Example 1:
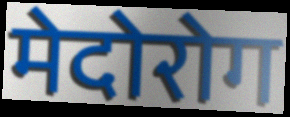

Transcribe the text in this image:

मेदोरोग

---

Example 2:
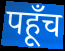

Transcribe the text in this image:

पहूँच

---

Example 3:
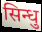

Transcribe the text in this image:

सिन्धु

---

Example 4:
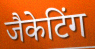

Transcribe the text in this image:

जैकेटिंग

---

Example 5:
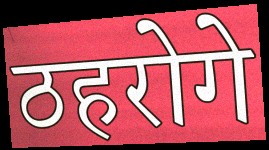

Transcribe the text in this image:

ठहरोगे